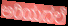
ಅರಿಯದಲೆ